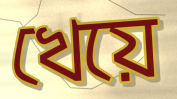
খেয়ে